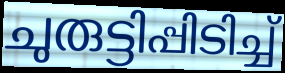
ചുരുട്ടിപ്പിടിച്ച്